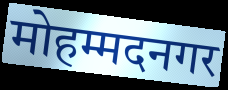
मोहम्मदनगर